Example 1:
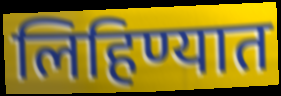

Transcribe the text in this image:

लिहिण्यात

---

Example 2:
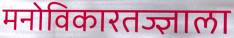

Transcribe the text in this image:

मनोविकारतज्ज्ञाला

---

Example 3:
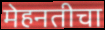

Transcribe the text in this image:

मेहनतीचा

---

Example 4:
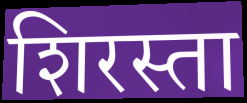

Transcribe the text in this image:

शिरस्ता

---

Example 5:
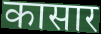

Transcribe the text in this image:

कासार